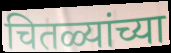
चितळ्यांच्या